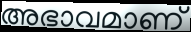
അഭാവമാണ്